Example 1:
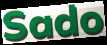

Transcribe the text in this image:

Sado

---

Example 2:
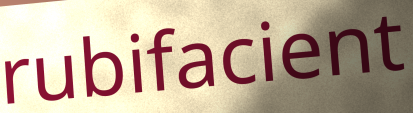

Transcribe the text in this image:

rubifacient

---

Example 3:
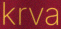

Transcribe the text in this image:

krva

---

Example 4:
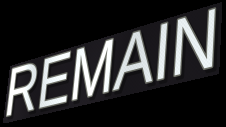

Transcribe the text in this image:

REMAIN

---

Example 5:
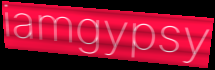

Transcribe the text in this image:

iamgypsy